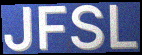
JFSL